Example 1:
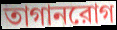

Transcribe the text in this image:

তাগানরোগ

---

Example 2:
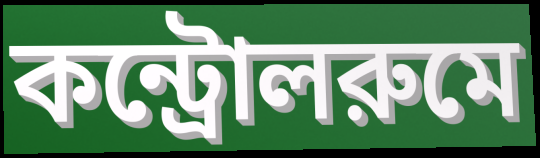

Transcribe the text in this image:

কন্ট্রোলরুমে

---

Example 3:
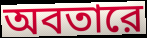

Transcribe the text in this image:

অবতারে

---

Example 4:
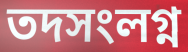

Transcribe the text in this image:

তদসংলগ্ন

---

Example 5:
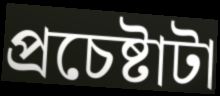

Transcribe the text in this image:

প্রচেষ্টাটা